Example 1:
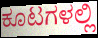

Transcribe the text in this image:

ಕೂಟಗಳಲ್ಲಿ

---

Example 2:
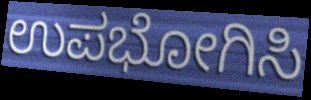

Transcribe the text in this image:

ಉಪಭೋಗಿಸಿ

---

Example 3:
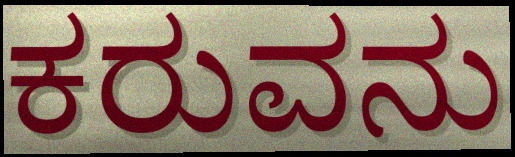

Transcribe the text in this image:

ಕರುವನು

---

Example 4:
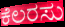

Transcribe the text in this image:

ಕೆಲರಸು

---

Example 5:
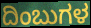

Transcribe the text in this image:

ದಿಂಬುಗಳ